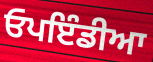
ਓਪਇੰਡੀਆ